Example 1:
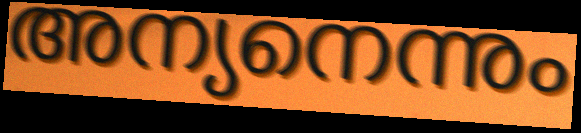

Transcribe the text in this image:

അന്യനെന്നും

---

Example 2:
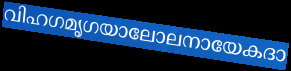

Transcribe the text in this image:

വിഹഗമൃഗയാലോലനായേകദാ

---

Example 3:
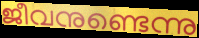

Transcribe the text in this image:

ജീവനുണ്ടെന്നു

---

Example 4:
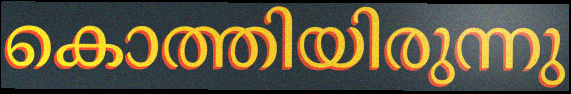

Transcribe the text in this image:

കൊത്തിയിരുന്നു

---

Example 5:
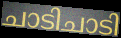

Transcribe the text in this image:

ചാടിചാടി